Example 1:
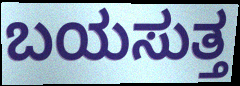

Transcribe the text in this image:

ಬಯಸುತ್ತ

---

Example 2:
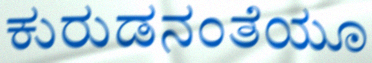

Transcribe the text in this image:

ಕುರುಡನಂತೆಯೂ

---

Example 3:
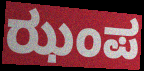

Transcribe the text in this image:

ಝಂಪ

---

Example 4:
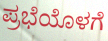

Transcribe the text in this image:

ಪ್ರಭೆಯೊಳಗೆ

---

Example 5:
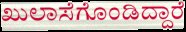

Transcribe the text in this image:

ಖುಲಾಸೆಗೊಂಡಿದ್ದಾರೆ